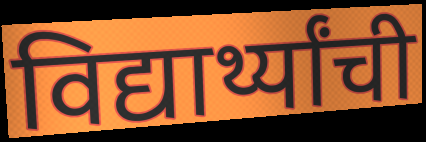
विद्यार्थ्‍यांची